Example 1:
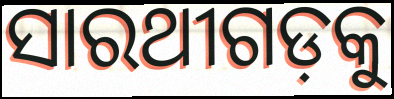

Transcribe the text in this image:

ସାରଥୀଗଡ଼କୁ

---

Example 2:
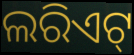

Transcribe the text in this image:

ଲରିଏଟ୍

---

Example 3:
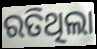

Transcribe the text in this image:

ରତିଥିଲା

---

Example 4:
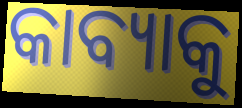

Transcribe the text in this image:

କାବ୍ୟାକୁ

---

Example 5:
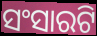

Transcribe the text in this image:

ସଂସାରଟି